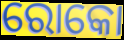
ରୋକୋ